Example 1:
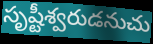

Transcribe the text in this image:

సృష్టీశ్వరుడనుచు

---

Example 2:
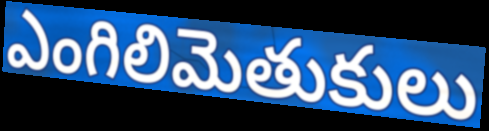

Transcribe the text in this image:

ఎంగిలిమెతుకులు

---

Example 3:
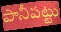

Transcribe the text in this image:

పానీపట్టు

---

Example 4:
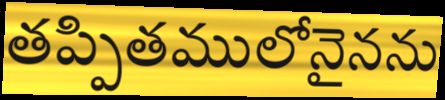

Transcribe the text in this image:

తప్పితములోనైనను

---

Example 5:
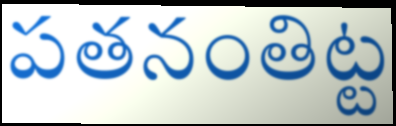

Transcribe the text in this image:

పతనంతిట్ట